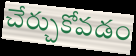
చేర్చుకోవడం